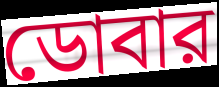
ডোবার